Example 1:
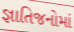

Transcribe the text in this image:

જ્ઞાતિજનોમાં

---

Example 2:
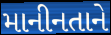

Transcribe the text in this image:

માનીનતાને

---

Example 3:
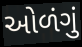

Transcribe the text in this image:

ઓળંગું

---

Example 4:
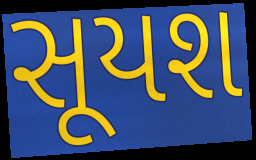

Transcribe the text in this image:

સૂયશ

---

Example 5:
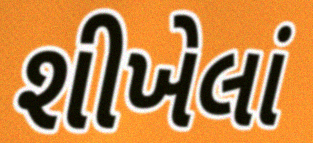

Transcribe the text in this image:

શીખેલાં